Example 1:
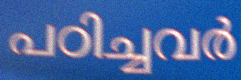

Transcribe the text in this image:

പഠിച്ചവർ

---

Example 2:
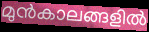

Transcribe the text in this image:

മുൻകാലങ്ങളിൽ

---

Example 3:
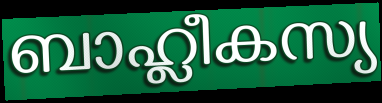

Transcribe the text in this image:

ബാഹ്ലീകസ്യ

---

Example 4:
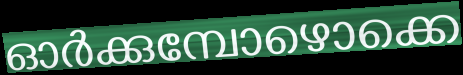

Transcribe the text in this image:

ഓർക്കുമ്പോഴൊക്കെ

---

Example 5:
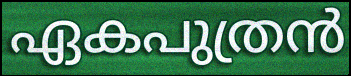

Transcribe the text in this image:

ഏകപുത്രൻ